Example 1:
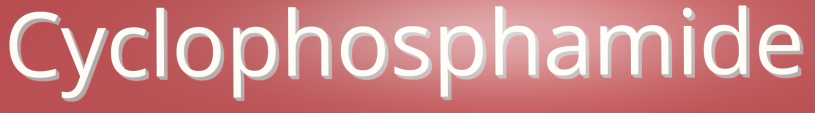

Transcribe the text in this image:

Cyclophosphamide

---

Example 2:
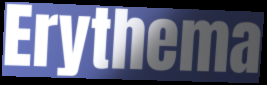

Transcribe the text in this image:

Erythema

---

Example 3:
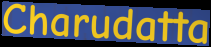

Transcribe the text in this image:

Charudatta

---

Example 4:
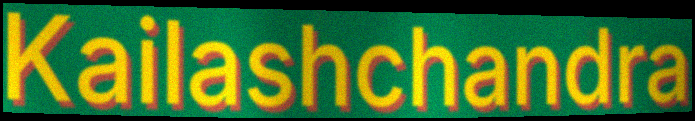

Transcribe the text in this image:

Kailashchandra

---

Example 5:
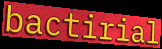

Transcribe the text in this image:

bactirial